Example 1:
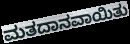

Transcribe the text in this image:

ಮತದಾನವಾಯಿತು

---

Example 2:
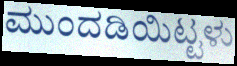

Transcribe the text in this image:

ಮುಂದಡಿಯಿಟ್ಟಳು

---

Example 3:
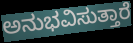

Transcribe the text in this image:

ಅನುಭವಿಸುತ್ತಾರೆ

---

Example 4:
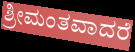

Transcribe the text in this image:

ಶ್ರೀಮಂತವಾದರೆ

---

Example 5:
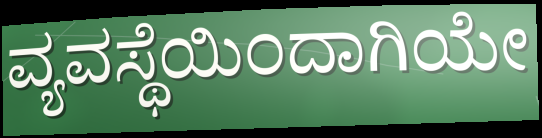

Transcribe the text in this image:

ವ್ಯವಸ್ಥೆಯಿಂದಾಗಿಯೇ